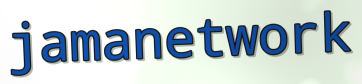
jamanetwork